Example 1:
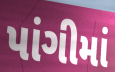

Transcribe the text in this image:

પાંગીમાં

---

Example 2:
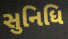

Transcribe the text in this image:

સુનિધિ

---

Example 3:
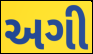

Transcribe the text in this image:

અગી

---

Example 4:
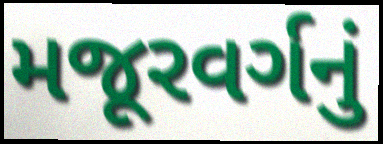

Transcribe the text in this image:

મજૂરવર્ગનું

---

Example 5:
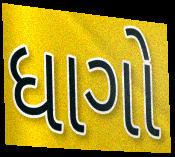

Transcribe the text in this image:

ધાગો